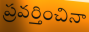
ప్రవర్తించినా